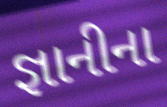
જ્ઞાનીના